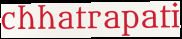
chhatrapati